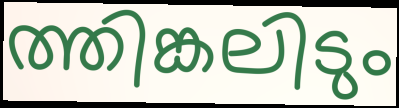
ത്തിങ്കലിടും